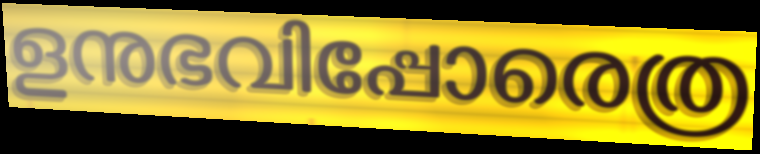
ളനുഭവിപ്പോരെത്ര